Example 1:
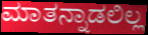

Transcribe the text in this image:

ಮಾತನ್ನಾಡಲಿಲ್ಲ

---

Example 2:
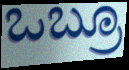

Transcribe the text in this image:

ಒಬ್ರೂ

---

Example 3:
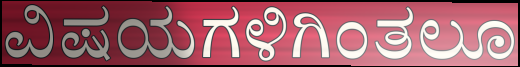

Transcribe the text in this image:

ವಿಷಯಗಳಿಗಿಂತಲೂ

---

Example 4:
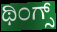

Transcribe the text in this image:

ಥಿಂಗ್ಸ್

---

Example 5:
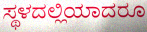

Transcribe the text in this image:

ಸ್ಥಳದಲ್ಲಿಯಾದರೂ